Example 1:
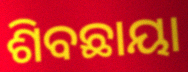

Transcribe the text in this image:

ଶିବଛାୟା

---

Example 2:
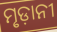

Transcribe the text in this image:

ମୃଡ଼ାନୀ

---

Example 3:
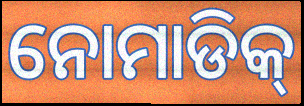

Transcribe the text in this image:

ନୋମାଡିକ୍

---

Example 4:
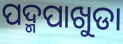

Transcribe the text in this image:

ପଦ୍ମପାଖୁଡା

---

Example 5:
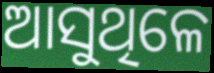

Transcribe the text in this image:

ଆସୁଥିଳେ